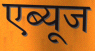
एब्यूज